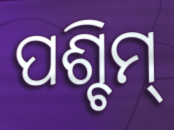
ପଶ୍ଚିମ୍